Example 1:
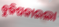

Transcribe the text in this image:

ବୁଜିପକାଇଲା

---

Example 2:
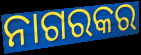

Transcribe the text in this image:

ନାଗରକର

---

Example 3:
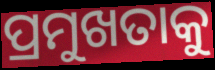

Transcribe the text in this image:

ପ୍ରମୁଖତାକୁ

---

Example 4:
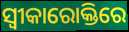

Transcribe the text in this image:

ସ୍ୱୀକାରୋକ୍ତିରେ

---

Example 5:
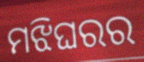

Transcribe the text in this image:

ମଝିଘରର